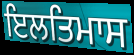
ਇਲਤਿਮਾਸ